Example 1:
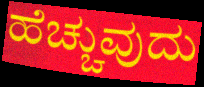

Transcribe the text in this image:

ಹೆಚ್ಚುವುದು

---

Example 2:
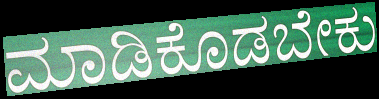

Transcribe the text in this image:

ಮಾಡಿಕೊಡಬೇಕು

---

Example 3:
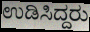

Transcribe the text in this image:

ಉಡಿಸಿದ್ದರು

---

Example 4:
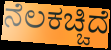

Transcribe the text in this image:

ನೆಲಕಚ್ಚಿದೆ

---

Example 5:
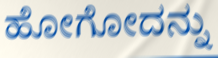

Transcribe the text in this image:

ಹೋಗೋದನ್ನು